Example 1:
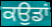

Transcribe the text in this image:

ਕਉਡਾਂ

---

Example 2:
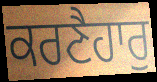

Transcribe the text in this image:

ਕਰਣੈਹਾਰੁ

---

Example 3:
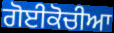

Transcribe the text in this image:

ਗੋਈਕੋਚੀਆ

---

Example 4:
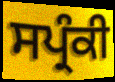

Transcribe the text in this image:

ਸਪ੍ਰੰਕੀ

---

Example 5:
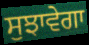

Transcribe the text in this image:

ਸੁਝਾਵੇਗਾ